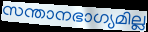
സന്താനഭാഗ്യമില്ല